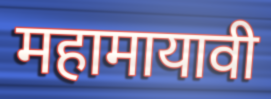
महामायावी